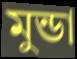
মুন্ডা